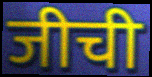
जीची